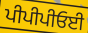
ਪੀਪੀਪੀਓਈ